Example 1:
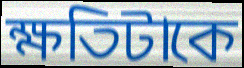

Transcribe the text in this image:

ক্ষতিটাকে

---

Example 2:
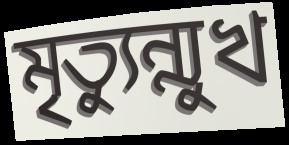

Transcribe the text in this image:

মৃত্যুন্মুখ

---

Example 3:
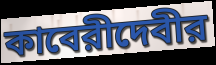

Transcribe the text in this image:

কাবেরীদেবীর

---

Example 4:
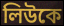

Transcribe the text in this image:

লিউকে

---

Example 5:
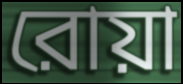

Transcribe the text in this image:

রোয়া